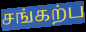
சங்கற்ப